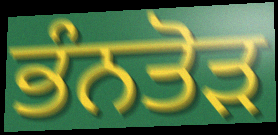
ਭੰਨਤੋੜ